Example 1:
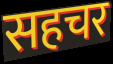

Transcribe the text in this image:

सहचर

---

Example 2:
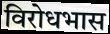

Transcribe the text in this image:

विरोधभास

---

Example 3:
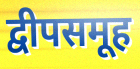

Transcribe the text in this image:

द्वीपसमूह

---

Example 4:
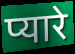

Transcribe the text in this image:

प्यारे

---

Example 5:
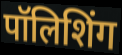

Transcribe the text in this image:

पॉलिशिंग